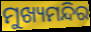
ମୁଖ୍ୟମନ୍ଦିର